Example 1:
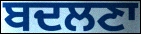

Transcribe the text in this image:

ਬਦਲਣਾ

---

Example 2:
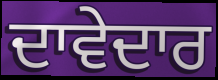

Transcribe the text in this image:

ਦਾਵੇਦਾਰ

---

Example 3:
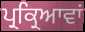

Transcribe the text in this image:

ਪ੍ਰਕ੍ਰਿਆਵਾਂ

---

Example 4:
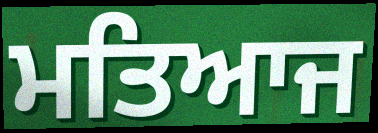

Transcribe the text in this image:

ਮਤਿਆਜ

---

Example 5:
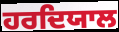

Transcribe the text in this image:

ਹਰਦਿਯਾਲ